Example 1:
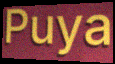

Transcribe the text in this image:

Puya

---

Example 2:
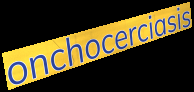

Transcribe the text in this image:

onchocerciasis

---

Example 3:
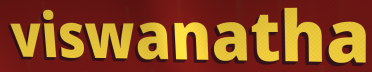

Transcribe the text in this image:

viswanatha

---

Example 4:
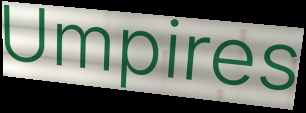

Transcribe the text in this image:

Umpires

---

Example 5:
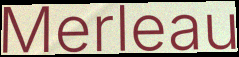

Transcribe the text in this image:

Merleau